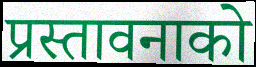
प्रस्तावनाको